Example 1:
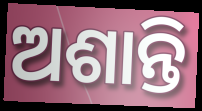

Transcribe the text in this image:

ଅଶାନ୍ତି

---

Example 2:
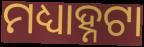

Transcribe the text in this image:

ମଧ୍ୟାହ୍ନଟା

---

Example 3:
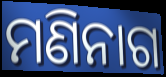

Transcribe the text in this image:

ମଣିନାଗ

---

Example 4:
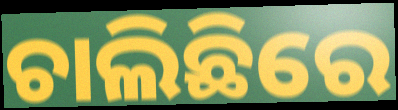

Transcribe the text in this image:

ଚାଲିଛିରେ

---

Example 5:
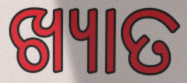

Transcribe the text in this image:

ଖ୍ୟାତ